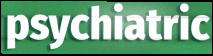
psychiatric